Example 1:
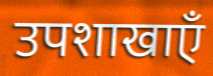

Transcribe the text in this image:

उपशाखाएँ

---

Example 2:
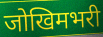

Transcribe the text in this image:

जोखिमभरी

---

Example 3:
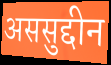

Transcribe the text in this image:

अससुद्दीन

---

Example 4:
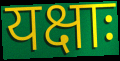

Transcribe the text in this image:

यक्षाः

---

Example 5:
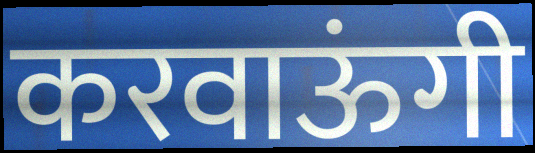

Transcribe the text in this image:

करवाऊंगी